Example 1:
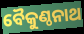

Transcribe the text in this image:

ବୈକୁଣ୍ଠନାଥ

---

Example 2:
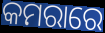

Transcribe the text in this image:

କମରାରେ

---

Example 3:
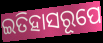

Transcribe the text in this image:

ଇତିହାସରୂପେ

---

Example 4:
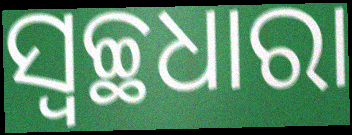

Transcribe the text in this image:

ସ୍ୱଚ୍ଛଧାରା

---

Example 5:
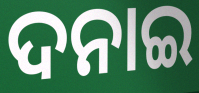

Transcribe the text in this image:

ଦନାଇ